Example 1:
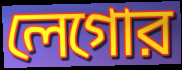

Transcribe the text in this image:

লেগোর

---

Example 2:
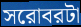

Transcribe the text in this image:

সরোবরটা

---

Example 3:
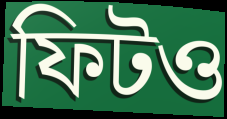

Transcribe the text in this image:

ফিটও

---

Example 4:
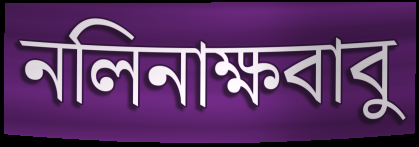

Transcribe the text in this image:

নলিনাক্ষবাবু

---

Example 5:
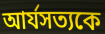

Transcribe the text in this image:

আর্যসত্যকে